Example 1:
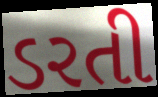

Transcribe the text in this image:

ડરતી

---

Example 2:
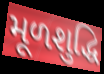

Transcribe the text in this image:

મૂળશુદ્ધિ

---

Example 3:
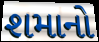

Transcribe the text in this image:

શમાનો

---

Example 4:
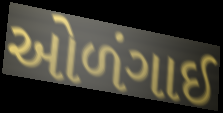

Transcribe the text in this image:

ઓળંગાઈ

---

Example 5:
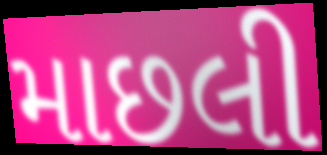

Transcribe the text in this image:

માછલી